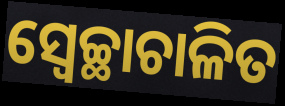
ସ୍ୱେଚ୍ଛାଚାଳିତ